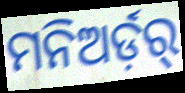
ମନିଅର୍ଡ଼ର୍